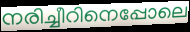
നരിച്ചീറിനെപ്പോലെ